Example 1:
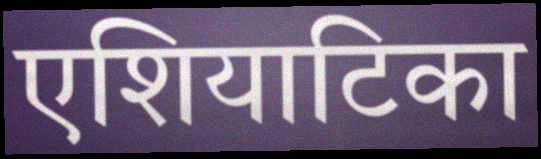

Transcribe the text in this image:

एशियाटिका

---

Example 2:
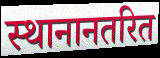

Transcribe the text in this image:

स्थानानतरित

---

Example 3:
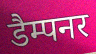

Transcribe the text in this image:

डैम्पनर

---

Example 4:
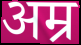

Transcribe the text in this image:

अम्र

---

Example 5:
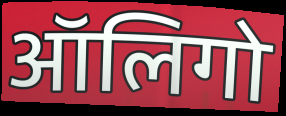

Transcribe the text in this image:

ऑलिगो